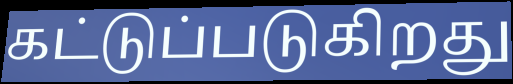
கட்டுப்படுகிறது